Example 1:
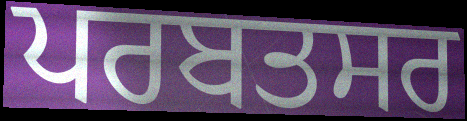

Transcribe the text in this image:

ਪਰਬਤਸਰ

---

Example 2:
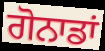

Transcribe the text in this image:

ਗੋਨਾਡਾਂ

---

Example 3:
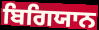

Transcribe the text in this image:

ਬਿਗਿਯਾਨ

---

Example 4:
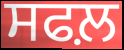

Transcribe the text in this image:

ਸਫਲ਼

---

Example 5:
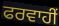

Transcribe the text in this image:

ਫਰਵਾਹੀਂ